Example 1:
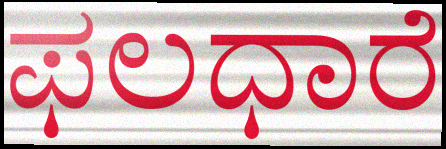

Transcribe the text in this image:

ಫಲಧಾರೆ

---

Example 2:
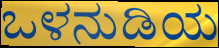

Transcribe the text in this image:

ಒಳನುಡಿಯ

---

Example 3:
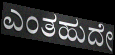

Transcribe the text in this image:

ಎಂತಹುದೇ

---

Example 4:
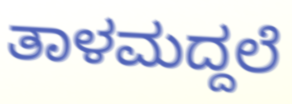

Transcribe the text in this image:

ತಾಳಮದ್ದಲೆ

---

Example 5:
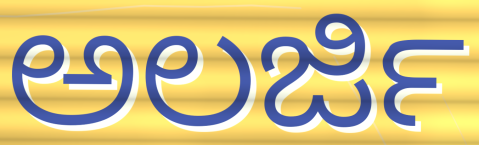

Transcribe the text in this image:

ಅಲರ್ಜಿ